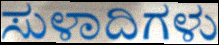
ಸುಳಾದಿಗಳು